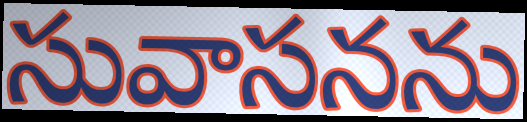
సువాసనను